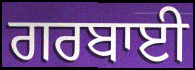
ਗਰਬਾਈ